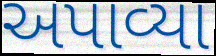
અપાવ્યા